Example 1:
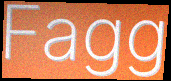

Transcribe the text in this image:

Fagg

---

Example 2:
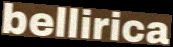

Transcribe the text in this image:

bellirica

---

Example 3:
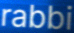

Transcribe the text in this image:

rabbi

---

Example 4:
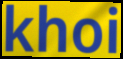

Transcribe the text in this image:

khoi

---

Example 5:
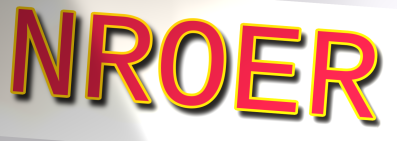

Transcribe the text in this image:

NROER